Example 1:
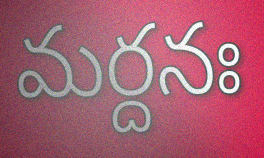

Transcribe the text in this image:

మర్దనః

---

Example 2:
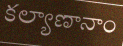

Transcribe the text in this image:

కల్యాణానాం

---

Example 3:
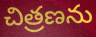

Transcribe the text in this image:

చిత్రణను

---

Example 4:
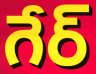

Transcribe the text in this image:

గేర్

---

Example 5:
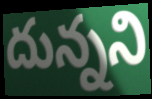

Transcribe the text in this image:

దున్నని